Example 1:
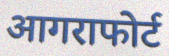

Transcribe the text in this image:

आगराफोर्ट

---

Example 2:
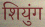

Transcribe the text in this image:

शियुंग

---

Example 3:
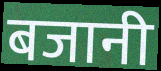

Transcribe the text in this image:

बजानी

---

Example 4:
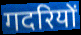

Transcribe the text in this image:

गदरियों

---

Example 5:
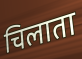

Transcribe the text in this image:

चिलाता